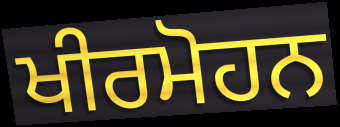
ਖੀਰਮੋਹਨ